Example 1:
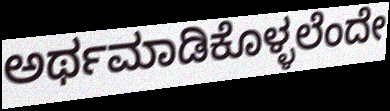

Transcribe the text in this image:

ಅರ್ಥಮಾಡಿಕೊಳ್ಳಲೆಂದೇ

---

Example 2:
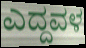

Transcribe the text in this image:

ಎದ್ದವಳ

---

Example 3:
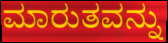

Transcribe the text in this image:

ಮಾರುತವನ್ನು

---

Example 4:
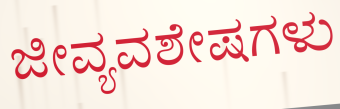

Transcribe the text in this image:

ಜೀವ್ಯವಶೇಷಗಳು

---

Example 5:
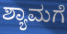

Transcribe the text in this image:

ಶ್ಯಾಮಗೆ